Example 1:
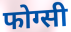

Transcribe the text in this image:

फोग्सी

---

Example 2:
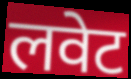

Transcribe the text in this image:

लवेट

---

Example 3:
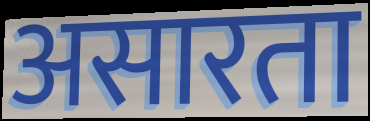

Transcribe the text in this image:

असारता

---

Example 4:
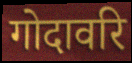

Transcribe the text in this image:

गोदावरि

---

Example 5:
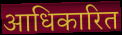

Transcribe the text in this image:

आधिकारित